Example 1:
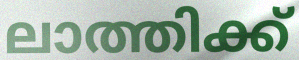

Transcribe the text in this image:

ലാത്തിക്ക്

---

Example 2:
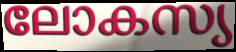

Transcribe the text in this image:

ലോകസ്യ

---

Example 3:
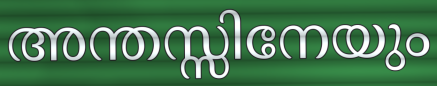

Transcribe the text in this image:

അന്തസ്സിനേയും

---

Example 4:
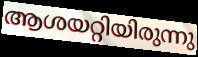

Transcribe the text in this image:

ആശയറ്റിയിരുന്നു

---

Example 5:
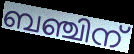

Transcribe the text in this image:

ബഞ്ചിന്